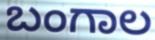
ಬಂಗಾಲ